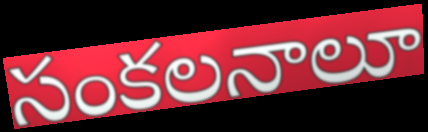
సంకలనాలూ